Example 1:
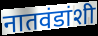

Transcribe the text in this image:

नातवंडांशी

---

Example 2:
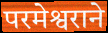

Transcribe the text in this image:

परमेश्वराने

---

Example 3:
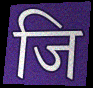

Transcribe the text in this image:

जि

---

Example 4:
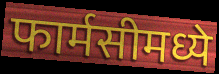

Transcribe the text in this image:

फार्मसीमध्ये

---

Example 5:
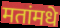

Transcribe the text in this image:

मतांमधे